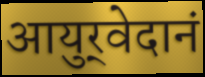
आयुर्वेदानं